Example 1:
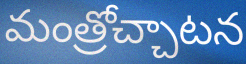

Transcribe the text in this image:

మంత్రోచ్చాటన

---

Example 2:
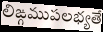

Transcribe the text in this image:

లిఙ్గముపలభ్యతే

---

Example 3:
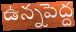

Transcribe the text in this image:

ఉన్నపెద్ద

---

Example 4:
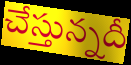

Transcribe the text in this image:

చేస్తున్నదీ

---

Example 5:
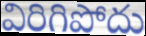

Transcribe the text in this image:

విరిగిపోదు